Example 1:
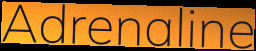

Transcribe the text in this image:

Adrenaline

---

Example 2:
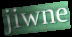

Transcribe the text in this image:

jiwne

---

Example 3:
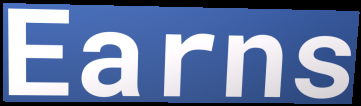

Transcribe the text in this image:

Earns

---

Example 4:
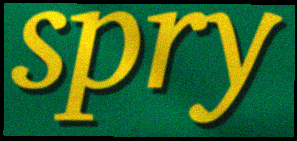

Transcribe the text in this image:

spry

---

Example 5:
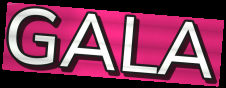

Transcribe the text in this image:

GALA